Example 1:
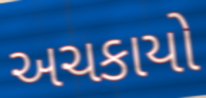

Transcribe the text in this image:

અચકાયો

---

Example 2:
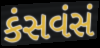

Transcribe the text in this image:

કંસવંસં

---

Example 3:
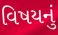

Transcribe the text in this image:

વિષયનું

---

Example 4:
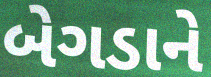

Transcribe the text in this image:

બેગડાને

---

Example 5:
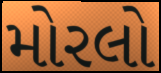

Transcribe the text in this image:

મોરલો